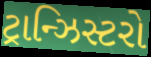
ટ્રાન્ઝિસ્ટરો